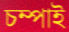
চম্পাই